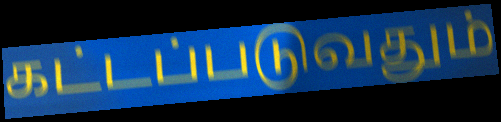
கட்டப்படுவதும்